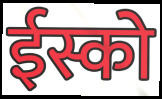
ईस्को